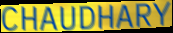
CHAUDHARY